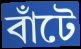
বাঁটে